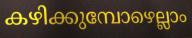
കഴിക്കുമ്പോഴെല്ലാം